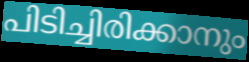
പിടിച്ചിരിക്കാനും